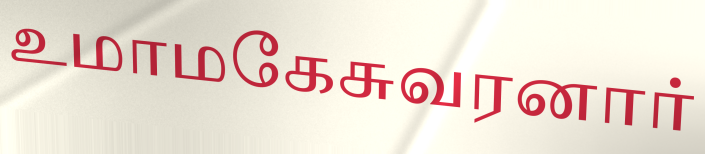
உமாமகேசுவரனார்